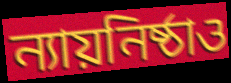
ন্যায়নিষ্ঠাও